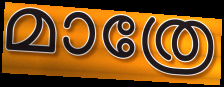
മാത്രേ